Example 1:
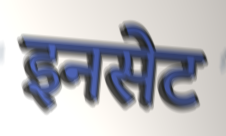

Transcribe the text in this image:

इनसेट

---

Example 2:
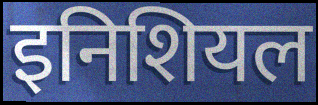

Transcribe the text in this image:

इनिशियल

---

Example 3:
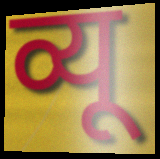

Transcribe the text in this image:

व्यू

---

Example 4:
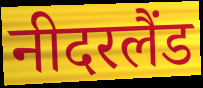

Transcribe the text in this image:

नीदरलैंड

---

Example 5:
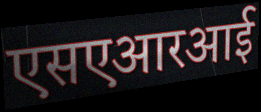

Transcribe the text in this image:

एसएआरआई